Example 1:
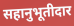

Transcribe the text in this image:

सहानुभूतीदार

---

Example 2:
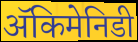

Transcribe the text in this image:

ॲकिमेनिडी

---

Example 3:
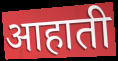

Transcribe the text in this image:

आहाती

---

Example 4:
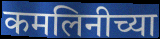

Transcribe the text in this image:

कमलिनीच्या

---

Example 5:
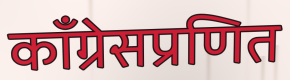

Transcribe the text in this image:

काँग्रेसप्रणित